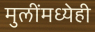
मुलींमध्येही